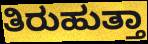
ತಿರುಹುತ್ತಾ